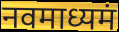
नवमाध्यमं